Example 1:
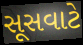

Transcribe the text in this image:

સૂસવાટે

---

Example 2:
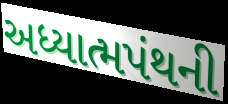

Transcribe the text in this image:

અધ્યાત્મપંથની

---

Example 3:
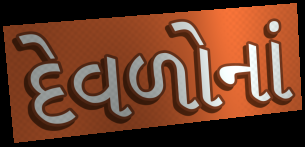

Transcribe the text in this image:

દેવળોનાં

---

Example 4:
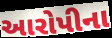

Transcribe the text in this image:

આરોપીના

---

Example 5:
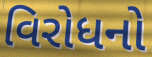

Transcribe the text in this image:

વિરોધનો